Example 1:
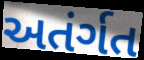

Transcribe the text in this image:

અતંર્ગત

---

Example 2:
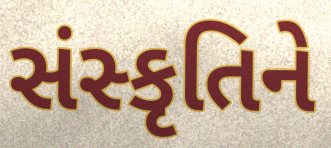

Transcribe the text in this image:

સંસ્કૃતિને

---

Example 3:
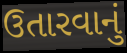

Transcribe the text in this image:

ઉતારવાનું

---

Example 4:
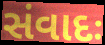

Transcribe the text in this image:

સંવાદઃ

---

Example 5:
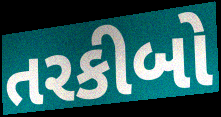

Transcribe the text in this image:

તરકીબો